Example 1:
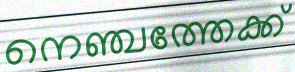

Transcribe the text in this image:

നെഞ്ചത്തേക്ക്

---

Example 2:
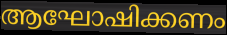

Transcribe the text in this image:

ആഘോഷിക്കണം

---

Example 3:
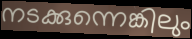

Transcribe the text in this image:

നടക്കുന്നെങ്കിലും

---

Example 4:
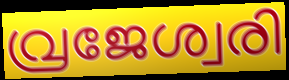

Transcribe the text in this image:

വ്രജേശ്വരി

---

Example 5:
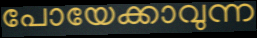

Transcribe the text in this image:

പോയേക്കാവുന്ന